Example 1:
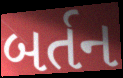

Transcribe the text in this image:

બર્તન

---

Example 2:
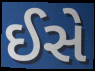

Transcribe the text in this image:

ઈસે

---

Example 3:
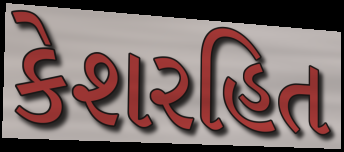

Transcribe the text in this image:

કેશરહિત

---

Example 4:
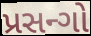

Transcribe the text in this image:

પ્રસન્ગો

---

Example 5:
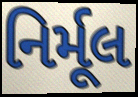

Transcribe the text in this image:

નિર્મૂલ